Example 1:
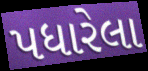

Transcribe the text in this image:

પધારેલા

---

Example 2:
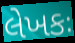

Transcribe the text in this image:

લેખકઃ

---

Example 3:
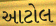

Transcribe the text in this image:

આટોલ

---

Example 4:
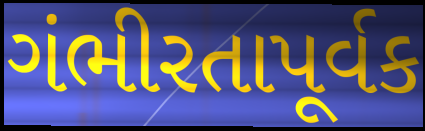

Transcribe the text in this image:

ગંભીરતાપૂર્વક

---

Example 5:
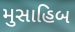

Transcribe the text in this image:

મુસાહિબ